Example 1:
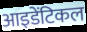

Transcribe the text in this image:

आइडेंटिकल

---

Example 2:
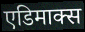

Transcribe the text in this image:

एडिमाक्स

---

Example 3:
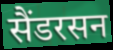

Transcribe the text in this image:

सैंडरसन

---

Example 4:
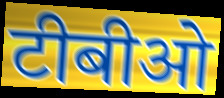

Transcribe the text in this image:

टीबीओ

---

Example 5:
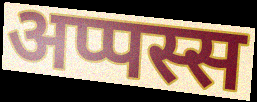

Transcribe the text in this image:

अप्पस्स